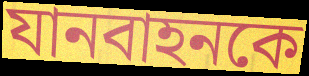
যানবাহনকে